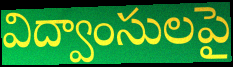
విద్వాంసులపై